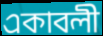
একাবলী